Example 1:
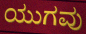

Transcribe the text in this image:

ಯುಗವು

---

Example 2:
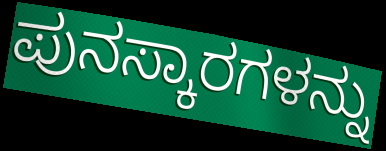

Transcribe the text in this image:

ಪುನಸ್ಕಾರಗಳನ್ನು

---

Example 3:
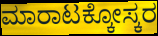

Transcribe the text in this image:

ಮಾರಾಟಕ್ಕೋಸ್ಕರ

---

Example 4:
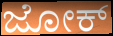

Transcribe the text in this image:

ಜೋಕ್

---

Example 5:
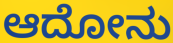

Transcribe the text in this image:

ಆದೋನು